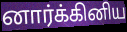
னார்க்கினிய